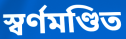
স্বর্ণমণ্ডিত